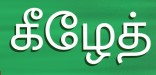
கீழேத்